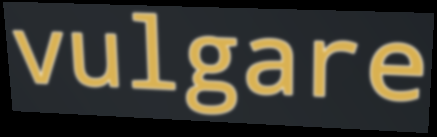
vulgare